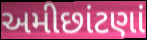
અમીછાંટણાં